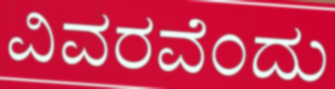
ವಿವರವೆಂದು